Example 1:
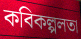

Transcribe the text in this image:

কবিকল্পলতা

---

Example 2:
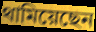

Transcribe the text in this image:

থামিয়েছেন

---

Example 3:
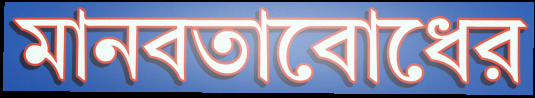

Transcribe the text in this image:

মানবতাবোধের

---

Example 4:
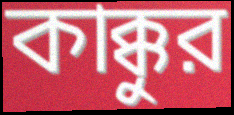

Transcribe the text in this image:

কাক্কুর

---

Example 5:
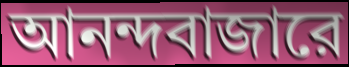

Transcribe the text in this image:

আনন্দবাজারে